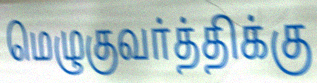
மெழுகுவர்த்திக்கு